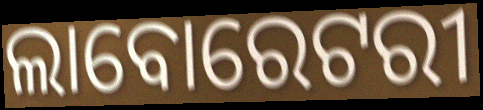
ଲାବୋରେଟରୀ